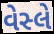
વેસ્લે